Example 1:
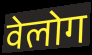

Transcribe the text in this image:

वेलोग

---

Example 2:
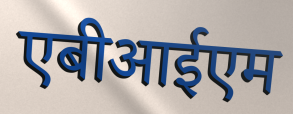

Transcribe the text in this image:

एबीआईएम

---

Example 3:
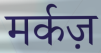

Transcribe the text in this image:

मर्कज़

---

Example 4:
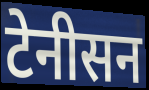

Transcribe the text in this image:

टेनीसन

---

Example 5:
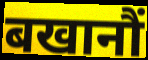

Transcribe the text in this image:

बखानौं